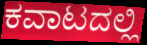
ಕವಾಟದಲ್ಲಿ